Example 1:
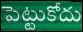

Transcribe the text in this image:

పెట్టుకోదు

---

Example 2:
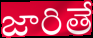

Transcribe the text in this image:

జారితే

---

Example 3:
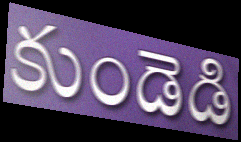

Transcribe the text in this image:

కుండెడి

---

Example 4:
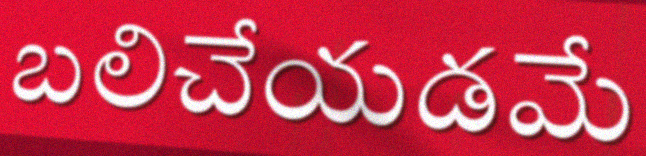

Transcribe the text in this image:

బలిచేయడమే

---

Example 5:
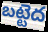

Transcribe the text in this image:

బట్టెద